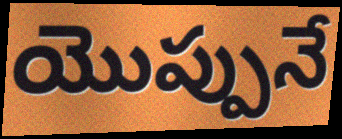
యొప్పునే